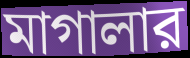
মাগালার